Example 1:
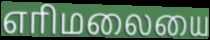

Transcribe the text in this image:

எரிமலையை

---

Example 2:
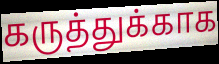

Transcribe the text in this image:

கருத்துக்காக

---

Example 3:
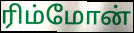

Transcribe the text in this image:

ரிம்மோன்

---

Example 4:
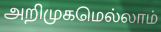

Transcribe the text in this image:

அறிமுகமெல்லாம்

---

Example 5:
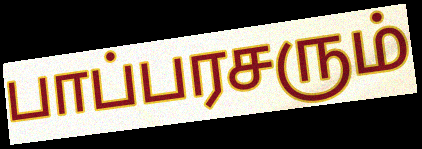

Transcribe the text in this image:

பாப்பரசரும்